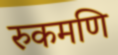
रुकमणि